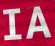
IA